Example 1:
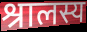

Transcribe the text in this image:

श्रालस्य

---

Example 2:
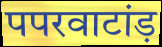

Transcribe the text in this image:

पपरवाटांड़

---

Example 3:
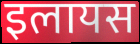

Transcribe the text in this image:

इलायस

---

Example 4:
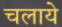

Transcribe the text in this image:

चलाये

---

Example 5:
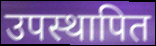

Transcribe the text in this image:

उपस्थापित